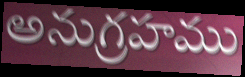
అనుగ్రహము